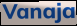
Vanaja